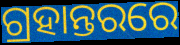
ଗ୍ରହାନ୍ତରରେ